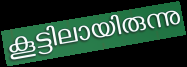
കൂട്ടിലായിരുന്നു